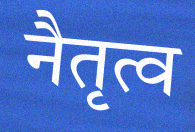
नैतृत्व